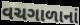
વચગાળાનાં